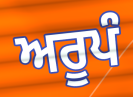
ਅਰੂਪੰ